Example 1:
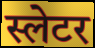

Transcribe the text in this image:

स्लेटर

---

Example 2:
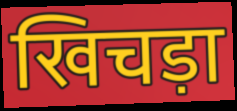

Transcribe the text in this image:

खिचड़ा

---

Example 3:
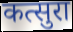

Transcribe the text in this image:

कत्सुरा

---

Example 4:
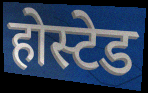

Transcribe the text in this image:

होस्टेड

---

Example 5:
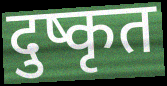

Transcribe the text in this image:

दुष्कृत